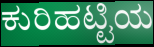
ಕುರಿಹಟ್ಟಿಯ